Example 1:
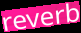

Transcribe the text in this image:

reverb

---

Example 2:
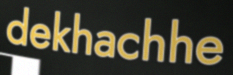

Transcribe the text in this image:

dekhachhe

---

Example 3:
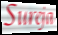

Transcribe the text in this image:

Sureja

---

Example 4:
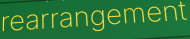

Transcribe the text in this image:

rearrangement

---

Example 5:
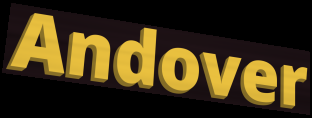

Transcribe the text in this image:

Andover